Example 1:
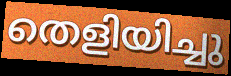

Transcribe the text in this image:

തെളിയിച്ചു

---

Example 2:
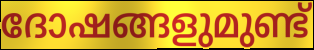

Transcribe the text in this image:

ദോഷങ്ങളുമുണ്ട്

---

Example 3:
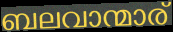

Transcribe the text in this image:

ബലവാന്മാര്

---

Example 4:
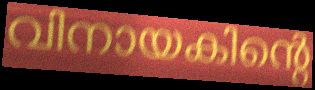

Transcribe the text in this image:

വിനായകിന്റെ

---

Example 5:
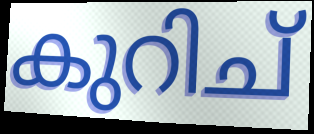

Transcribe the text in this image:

കുറിച്